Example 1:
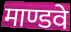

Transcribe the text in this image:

माण्डवे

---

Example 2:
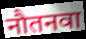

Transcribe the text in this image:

नौतनवा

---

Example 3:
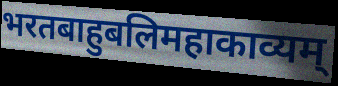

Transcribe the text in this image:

भरतबाहुबलिमहाकाव्यम्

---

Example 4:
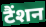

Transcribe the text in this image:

टैंशन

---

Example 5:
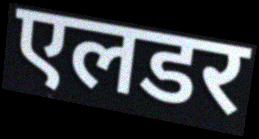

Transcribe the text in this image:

एलडर